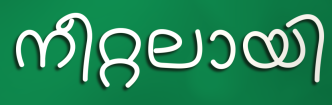
നീറ്റലായി